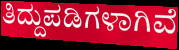
ತಿದ್ದುಪಡಿಗಳಾಗಿವೆ